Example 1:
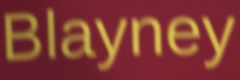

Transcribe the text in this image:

Blayney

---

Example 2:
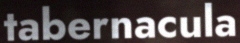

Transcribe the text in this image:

tabernacula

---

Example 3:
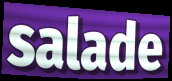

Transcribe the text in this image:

salade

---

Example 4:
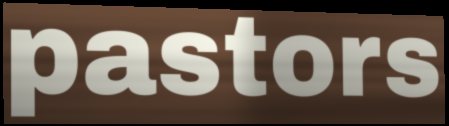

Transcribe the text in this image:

pastors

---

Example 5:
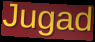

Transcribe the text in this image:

Jugad